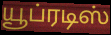
யூப்ரடிஸ்